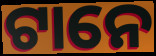
ଟାନେ